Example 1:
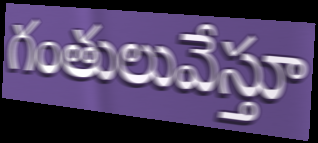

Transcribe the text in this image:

గంతులువేస్తూ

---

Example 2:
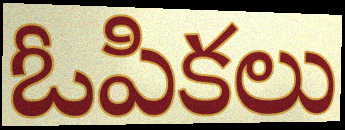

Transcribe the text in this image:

ఓపికలు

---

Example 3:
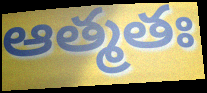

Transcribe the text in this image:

ఆత్మతః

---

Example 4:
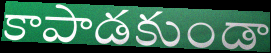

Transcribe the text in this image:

కాపాడకుండా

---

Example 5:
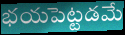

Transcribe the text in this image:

భయపెట్టడమే